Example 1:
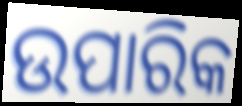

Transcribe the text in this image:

ଉପାରିକ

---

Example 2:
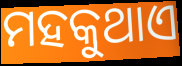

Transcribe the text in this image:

ମହକୁଥାଏ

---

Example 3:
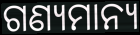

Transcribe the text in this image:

ଗଣ୍ୟମାନ୍ୟ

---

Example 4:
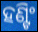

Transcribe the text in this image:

ହଣ୍ଟିଂ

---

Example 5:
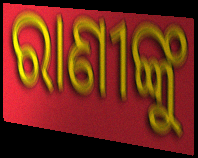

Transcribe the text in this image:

ରାଣୀଙ୍କୁ